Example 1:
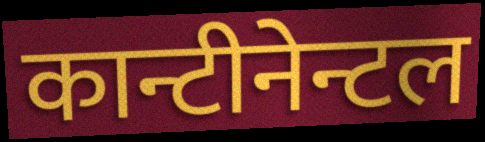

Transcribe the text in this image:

कान्टीनेन्टल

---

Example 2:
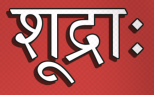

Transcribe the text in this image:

शूद्राः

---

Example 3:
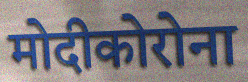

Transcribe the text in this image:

मोदीकोरोना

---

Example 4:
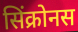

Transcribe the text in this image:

सिंक्रोनस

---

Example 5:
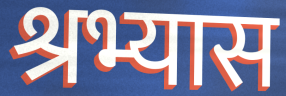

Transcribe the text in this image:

श्रभ्यास